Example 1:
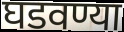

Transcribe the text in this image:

घडवण्या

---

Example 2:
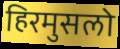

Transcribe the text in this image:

हिरमुसलो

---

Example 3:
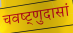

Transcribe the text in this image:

चवष्ट्णुदासां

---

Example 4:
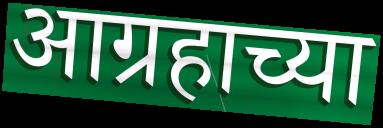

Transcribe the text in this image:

आग्रहाच्या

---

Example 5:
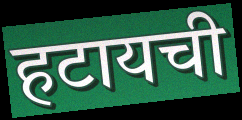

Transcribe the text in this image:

हटायची